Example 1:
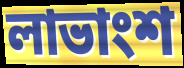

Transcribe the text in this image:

লাভাংশ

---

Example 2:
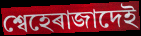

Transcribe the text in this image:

শ্বেহেৰাজাদেই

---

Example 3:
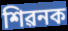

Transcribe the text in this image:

শিৱনক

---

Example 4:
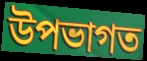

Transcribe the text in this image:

উপভাগত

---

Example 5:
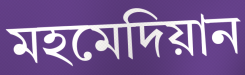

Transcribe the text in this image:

মহমেদিয়ান